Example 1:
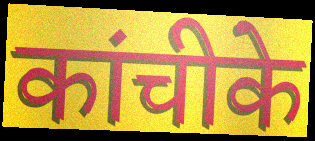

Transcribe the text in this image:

कांचीके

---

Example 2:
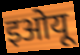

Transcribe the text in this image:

इओयू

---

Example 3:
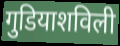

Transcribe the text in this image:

गुडियाशविली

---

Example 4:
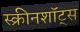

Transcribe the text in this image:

स्क्रीनशॉट्स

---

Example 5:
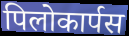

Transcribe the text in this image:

पिलोकार्पस